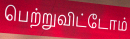
பெற்றுவிட்டோம்